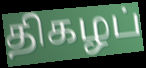
திகழப்